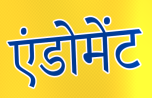
एंडोमेंट